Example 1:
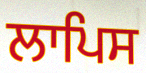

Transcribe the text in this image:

ਲਾਪਿਸ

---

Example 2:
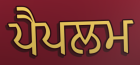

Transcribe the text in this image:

ਪੈਪਲਮ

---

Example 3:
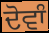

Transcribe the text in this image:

ਦੋਵਾੰ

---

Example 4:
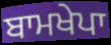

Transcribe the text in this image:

ਬਾਮਖੇਪਾ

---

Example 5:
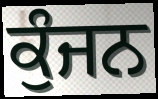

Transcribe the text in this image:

ਕੁੰਜਨ